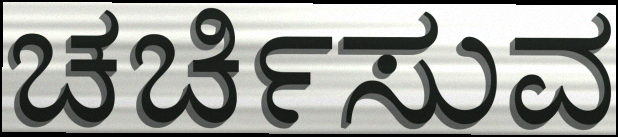
ಚರ್ಚಿಸುವ